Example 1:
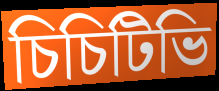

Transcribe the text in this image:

চিচিটিভি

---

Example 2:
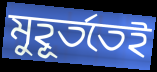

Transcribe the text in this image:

মুহূৰ্ততেই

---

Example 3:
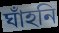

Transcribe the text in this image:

ঘাঁহনি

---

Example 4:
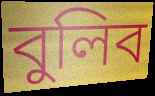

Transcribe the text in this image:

বুলিব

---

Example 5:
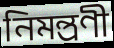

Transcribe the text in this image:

নিমন্ত্ৰণী